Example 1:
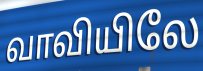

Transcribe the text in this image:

வாவியிலே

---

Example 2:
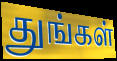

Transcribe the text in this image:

துங்கள்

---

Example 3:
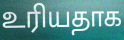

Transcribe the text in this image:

உரியதாக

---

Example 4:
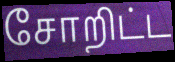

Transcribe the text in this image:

சோறிட்ட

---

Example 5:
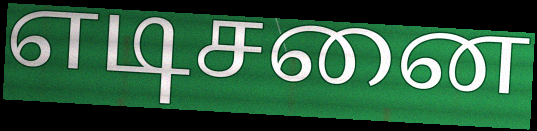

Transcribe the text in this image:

எடிசனை